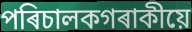
পৰিচালকগৰাকীয়ে